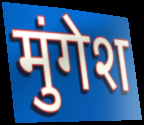
मुंगेश